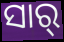
ସାର୍